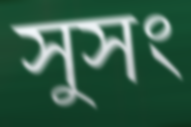
সুসং